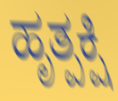
ಹೃತ್ಪಕ್ಷಿ